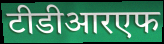
टीडीआरएफ